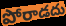
పోరాడదు